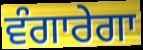
ਵੰਗਾਰੇਗਾ